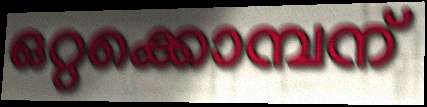
ഒറ്റക്കൊമ്പന്